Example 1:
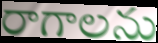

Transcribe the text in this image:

రాగాలను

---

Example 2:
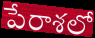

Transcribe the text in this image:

పేరాశలో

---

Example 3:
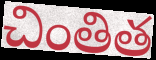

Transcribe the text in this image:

చింతిత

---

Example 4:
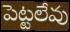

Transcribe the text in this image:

పెట్టలేవు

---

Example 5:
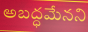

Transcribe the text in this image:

అబద్ధమేనని